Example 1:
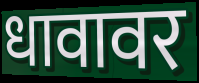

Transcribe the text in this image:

धावावर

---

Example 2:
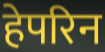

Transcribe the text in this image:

हेपरिन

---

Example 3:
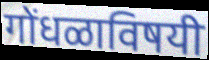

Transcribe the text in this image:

गोंधळाविषयी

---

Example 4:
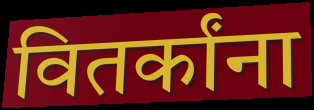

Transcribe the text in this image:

वितर्कांना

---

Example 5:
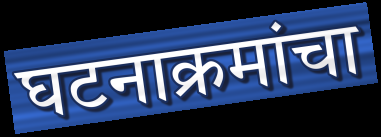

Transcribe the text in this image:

घटनाक्रमांचा